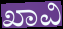
ಖಾವಿ